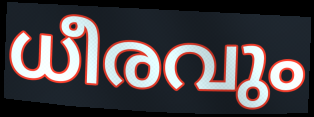
ധീരവും